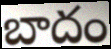
బాదం